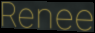
Renee